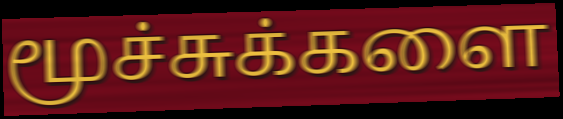
மூச்சுக்களை